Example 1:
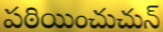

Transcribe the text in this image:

పఠియించుచున్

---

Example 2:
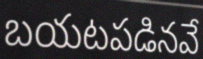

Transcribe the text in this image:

బయటపడినవే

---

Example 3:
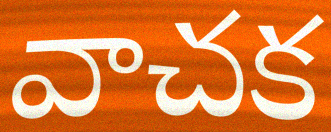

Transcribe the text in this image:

వాచక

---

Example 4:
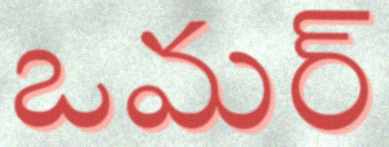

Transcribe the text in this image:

ఒమర్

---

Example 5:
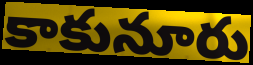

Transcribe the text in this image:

కాకునూరు